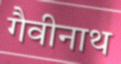
गैवीनाथ